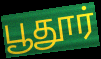
பூதூர்